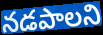
నడపాలని